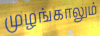
முழங்காலும்